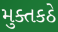
મુક્તકઠે